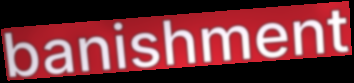
banishment